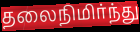
தலைநிமிர்ந்து